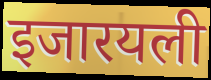
इजारयली